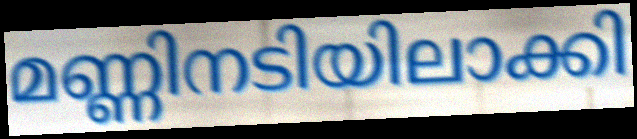
മണ്ണിനടിയിലാക്കി